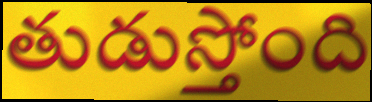
తుడుస్తోంది